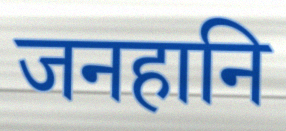
जनहानि